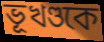
ভূখণ্ডকে